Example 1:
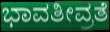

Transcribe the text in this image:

ಭಾವತೀವ್ರತೆ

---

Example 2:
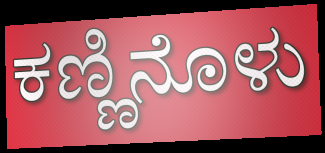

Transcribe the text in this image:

ಕಣ್ಣಿನೊಳು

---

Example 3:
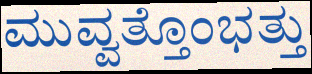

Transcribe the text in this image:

ಮುವ್ವತ್ತೊಂಭತ್ತು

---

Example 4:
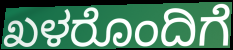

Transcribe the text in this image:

ಖಳರೊಂದಿಗೆ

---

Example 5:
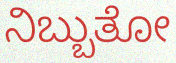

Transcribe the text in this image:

ನಿಬ್ಬುತೋ